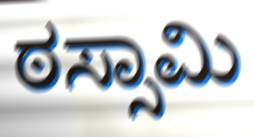
ಠಸ್ಸಾಮಿ